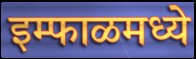
इम्फाळमध्ये